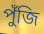
পুঁজি